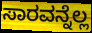
ಸಾರವನ್ನೆಲ್ಲ